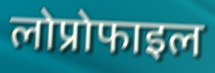
लोप्रोफाइल